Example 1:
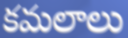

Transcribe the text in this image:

కమలాలు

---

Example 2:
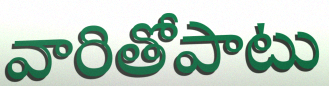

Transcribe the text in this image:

వారితోపాటు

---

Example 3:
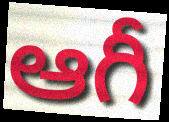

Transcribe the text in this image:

ఆగీ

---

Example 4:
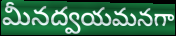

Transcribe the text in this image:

మీనద్వయమనగా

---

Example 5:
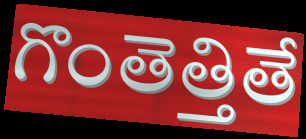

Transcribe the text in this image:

గొంతెత్తితే